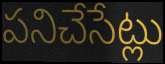
పనిచేసేట్లు